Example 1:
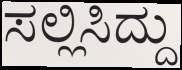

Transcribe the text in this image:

ಸಲ್ಲಿಸಿದ್ದು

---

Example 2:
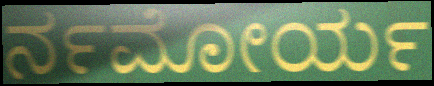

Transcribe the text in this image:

ರ್ನಮೋರ್ಯ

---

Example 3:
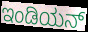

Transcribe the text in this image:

ಇಂಡಿಯನ್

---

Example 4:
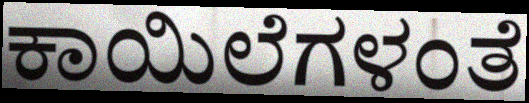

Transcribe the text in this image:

ಕಾಯಿಲೆಗಳಂತೆ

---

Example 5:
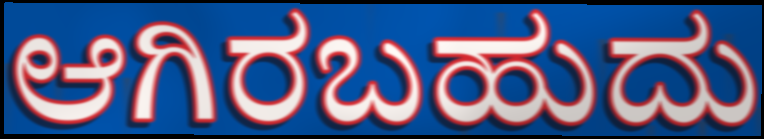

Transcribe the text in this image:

ಆಗಿರಬಹುದು